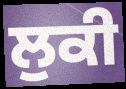
ਲੁਕੀ